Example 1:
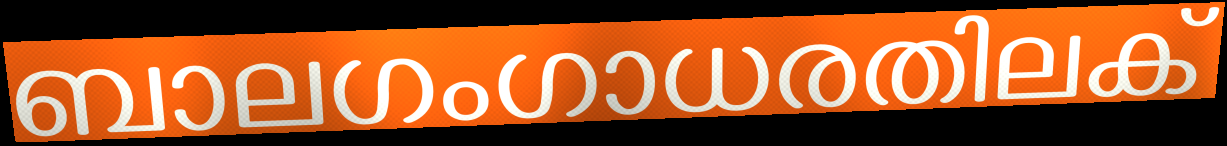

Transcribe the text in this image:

ബാലഗംഗാധരതിലക്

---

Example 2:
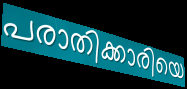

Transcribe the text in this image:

പരാതിക്കാരിയെ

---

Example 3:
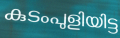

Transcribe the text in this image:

കുടംപുളിയിട്ട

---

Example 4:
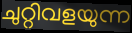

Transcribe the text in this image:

ചുറ്റിവളയുന്ന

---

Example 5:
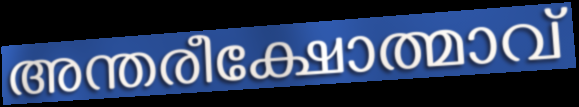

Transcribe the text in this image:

അന്തരീക്ഷോത്മാവ്